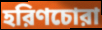
হরিণচোরা